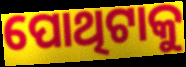
ପୋଥିଟାକୁ